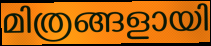
മിത്രങ്ങളായി